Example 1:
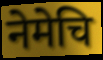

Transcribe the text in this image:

नेमेचि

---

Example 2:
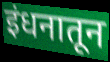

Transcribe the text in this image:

इंधनातून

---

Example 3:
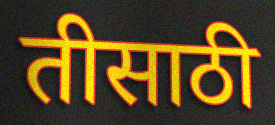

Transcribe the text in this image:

तीसाठी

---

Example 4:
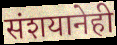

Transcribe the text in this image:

संशयानेही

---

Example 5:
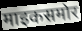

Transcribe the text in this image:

माइकसमोर